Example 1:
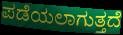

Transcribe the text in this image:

ಪಡೆಯಲಾಗುತ್ತದೆ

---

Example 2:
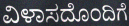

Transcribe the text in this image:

ವಿಳಾಸದೊಂದಿಗೆ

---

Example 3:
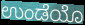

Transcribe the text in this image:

ಉಂಡೆಯೊ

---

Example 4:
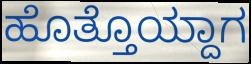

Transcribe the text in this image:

ಹೊತ್ತೊಯ್ದಾಗ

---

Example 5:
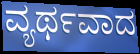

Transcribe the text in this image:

ವ್ಯರ್ಥವಾದ